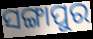
ସଙ୍ଗାପୁର